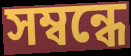
সম্বন্ধে